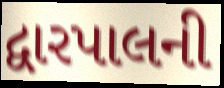
દ્વારપાલની